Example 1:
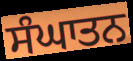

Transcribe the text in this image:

ਸੰਘਾਤਨ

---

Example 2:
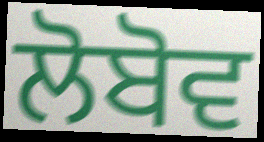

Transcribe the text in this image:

ਲੋਬੋਵ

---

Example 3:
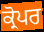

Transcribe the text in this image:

ਕ੍ਰੋਪਰ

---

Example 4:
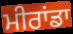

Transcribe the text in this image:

ਮੀਰਾਂਡਾ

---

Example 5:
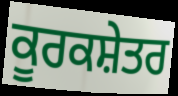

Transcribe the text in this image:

ਕੂਰਕਸ਼ੇਤਰ